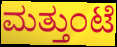
ಮತ್ತುಂಟೆ